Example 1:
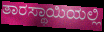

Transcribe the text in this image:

ತಾರಸ್ಥಾಯಿಯಲ್ಲಿ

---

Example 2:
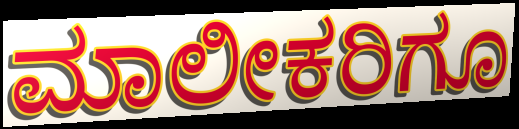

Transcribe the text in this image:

ಮಾಲೀಕರಿಗೂ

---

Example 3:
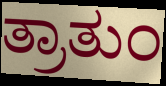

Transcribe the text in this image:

ತ್ರಾತುಂ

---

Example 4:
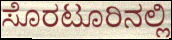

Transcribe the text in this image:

ಸೊರಟೂರಿನಲ್ಲಿ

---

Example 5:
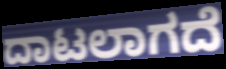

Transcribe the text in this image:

ದಾಟಲಾಗದೆ